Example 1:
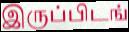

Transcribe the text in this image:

இருப்பிடங்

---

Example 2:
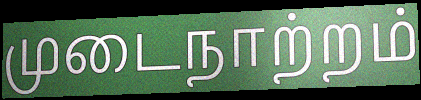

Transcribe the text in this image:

முடைநாற்றம்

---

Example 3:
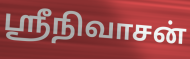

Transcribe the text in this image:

ஸ்ரீநிவாசன்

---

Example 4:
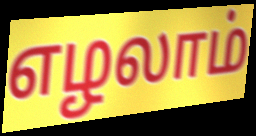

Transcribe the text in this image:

எழலாம்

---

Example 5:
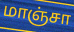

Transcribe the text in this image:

மாஞ்சா